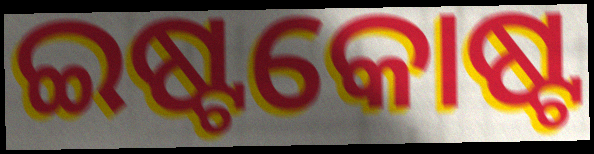
ଇଷ୍ଟକୋଷ୍ଟ